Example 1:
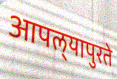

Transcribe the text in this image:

आपल्यापुरते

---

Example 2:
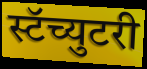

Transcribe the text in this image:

स्टॅच्युटरी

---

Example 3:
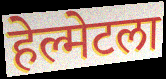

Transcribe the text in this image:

हेल्मेटला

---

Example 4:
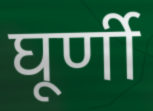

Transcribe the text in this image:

घूर्णी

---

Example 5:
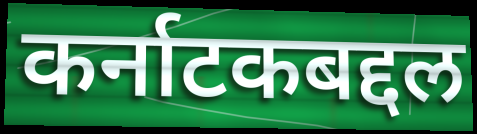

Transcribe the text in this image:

कर्नाटकबद्दल